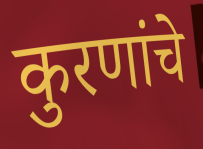
कुरणांचे